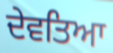
ਦੇਵਤਿਆ